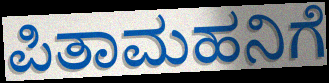
ಪಿತಾಮಹನಿಗೆ